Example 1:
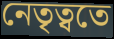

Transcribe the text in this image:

নেতৃত্বতে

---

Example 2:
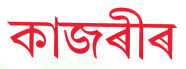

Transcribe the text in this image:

কাজৰীৰ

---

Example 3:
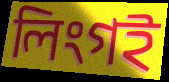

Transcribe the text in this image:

লিংগই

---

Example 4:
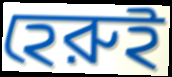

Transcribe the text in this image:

হেৰুই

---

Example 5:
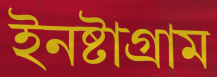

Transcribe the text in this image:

ইনষ্টাগ্ৰাম